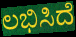
ಲಭಿಸಿದೆ